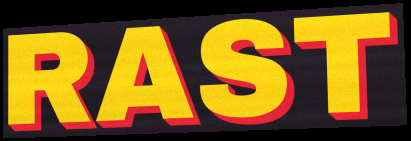
RAST